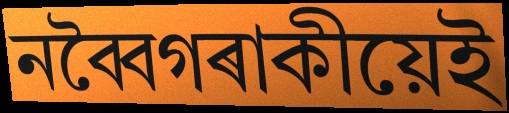
নব্বৈগৰাকীয়েই